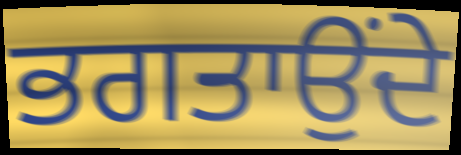
ਭਗਤਾਉਂਦੇ